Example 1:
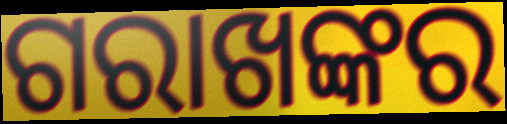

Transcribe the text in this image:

ଗରାଖଙ୍କର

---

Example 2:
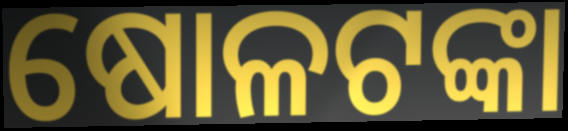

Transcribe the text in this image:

ଷୋଳଟଙ୍କା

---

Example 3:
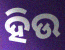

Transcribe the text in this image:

ହିଉ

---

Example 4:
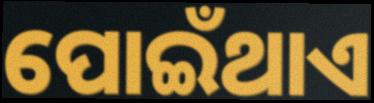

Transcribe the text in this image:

ପୋଇଁଥାଏ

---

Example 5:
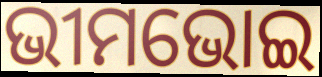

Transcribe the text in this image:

ଭୀମଭୋଇ